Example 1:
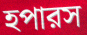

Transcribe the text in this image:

হপারস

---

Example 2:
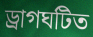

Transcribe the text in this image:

ড্রাগঘটিত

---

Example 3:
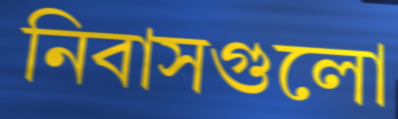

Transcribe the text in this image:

নিবাসগুলো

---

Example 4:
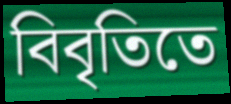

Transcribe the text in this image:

বিবৃতিতে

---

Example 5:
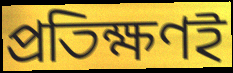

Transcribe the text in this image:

প্রতিক্ষণই